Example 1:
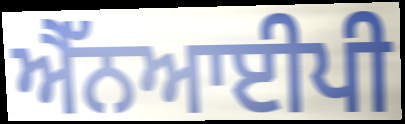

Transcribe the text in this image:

ਐੱਨਆਈਪੀ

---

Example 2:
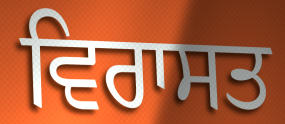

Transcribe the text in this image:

ਵਿਰਾਸਤ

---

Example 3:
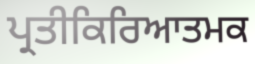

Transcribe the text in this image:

ਪ੍ਰਤੀਕਿਰਿਆਤਮਕ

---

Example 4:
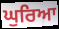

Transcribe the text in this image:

ਘੁਰਿਆ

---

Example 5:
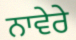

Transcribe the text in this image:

ਨਾਵੇਰੇ